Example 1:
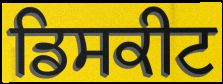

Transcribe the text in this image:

ਡਿਸਕੀਟ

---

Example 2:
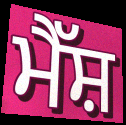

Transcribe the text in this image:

ਮੈੱਸ਼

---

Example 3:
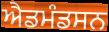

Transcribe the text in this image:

ਐਡਮੰਡਸਨ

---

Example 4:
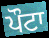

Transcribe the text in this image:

ਪੌਟਾ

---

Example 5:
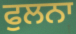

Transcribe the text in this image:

ਫੁਲਨਾ